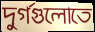
দুর্গগুলোতে